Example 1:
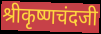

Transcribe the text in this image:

श्रीकृष्णचंदजी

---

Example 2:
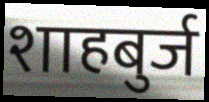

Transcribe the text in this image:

शाहबुर्ज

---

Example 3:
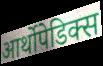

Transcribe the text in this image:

आर्थोपेडिक्स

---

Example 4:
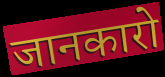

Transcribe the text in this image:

जानकारो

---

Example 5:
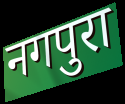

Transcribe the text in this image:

नगपुरा